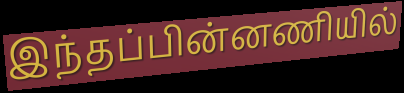
இந்தப்பின்னணியில்